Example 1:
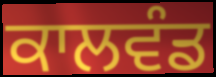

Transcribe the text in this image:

ਕਾਲਵੰਡ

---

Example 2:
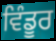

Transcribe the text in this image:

ਵਿੰਡੂਰ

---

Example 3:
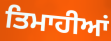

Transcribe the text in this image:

ਤਿਮਾਹੀਆਂ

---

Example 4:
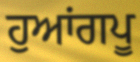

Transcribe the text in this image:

ਹੁਆਂਗਪੂ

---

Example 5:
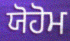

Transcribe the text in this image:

ਯੋਹੋਮ